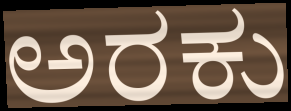
ಅರಕು